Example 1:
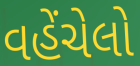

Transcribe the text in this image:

વહેંચેલો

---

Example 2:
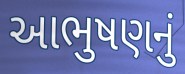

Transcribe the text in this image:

આભુષણનું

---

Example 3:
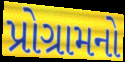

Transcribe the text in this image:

પ્રોગ્રામનો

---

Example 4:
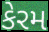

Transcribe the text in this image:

કેરમ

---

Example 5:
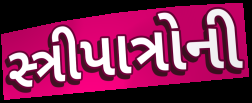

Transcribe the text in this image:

સ્ત્રીપાત્રોની